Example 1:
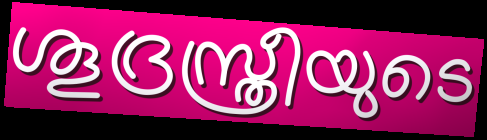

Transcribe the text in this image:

ശൂദ്രസ്ത്രീയുടെ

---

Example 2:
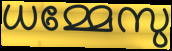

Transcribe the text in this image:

ധമ്മേസു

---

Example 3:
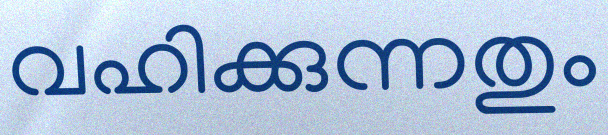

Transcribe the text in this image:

വഹിക്കുന്നതും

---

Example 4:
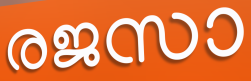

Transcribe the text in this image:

രജസാ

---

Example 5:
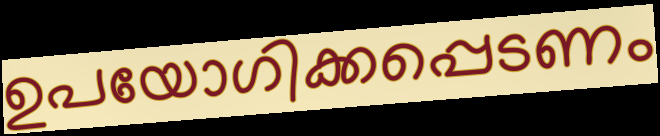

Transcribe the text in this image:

ഉപയോഗിക്കപ്പെടണം